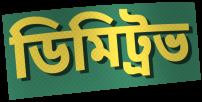
ডিমিট্রভ